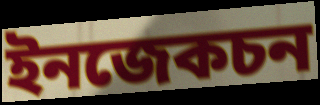
ইনজেকচন